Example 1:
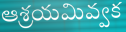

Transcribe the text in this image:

ఆశ్రయమివ్వక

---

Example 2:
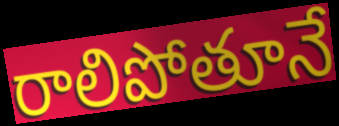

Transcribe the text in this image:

రాలిపోతూనే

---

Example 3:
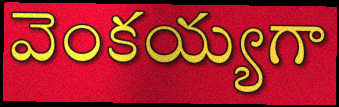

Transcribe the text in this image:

వెంకయ్యగా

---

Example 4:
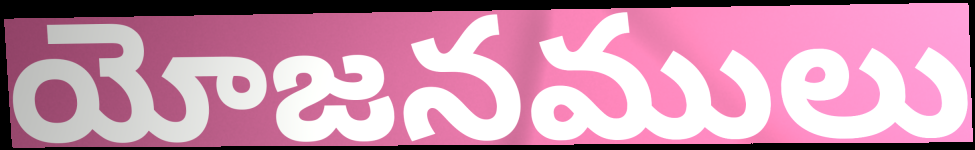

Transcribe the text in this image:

యోజనములు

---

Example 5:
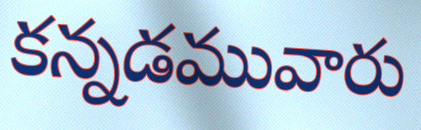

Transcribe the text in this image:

కన్నడమువారు